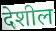
देशील